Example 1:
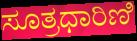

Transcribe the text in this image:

ಸೂತ್ರಧಾರಿಣಿ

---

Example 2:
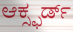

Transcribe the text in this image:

ಆಕ್ಸ್ಫರ್ಡ್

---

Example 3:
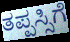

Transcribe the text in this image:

ತಪ್ಪಸ್ಸಿಗೆ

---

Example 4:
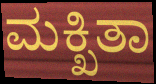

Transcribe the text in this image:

ಮಕ್ಖಿತಾ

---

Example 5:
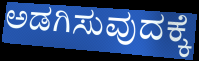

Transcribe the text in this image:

ಅಡಗಿಸುವುದಕ್ಕೆ